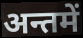
अन्तमें